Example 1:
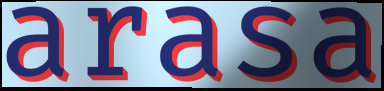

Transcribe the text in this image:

arasa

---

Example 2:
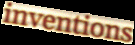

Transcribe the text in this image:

inventions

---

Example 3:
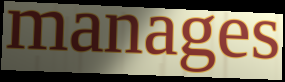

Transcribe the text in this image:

manages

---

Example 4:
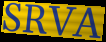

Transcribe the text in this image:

SRVA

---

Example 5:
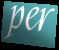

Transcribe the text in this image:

per